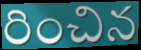
రించిన